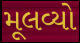
મૂલવ્યો